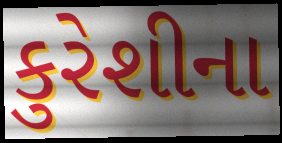
કુરેશીના